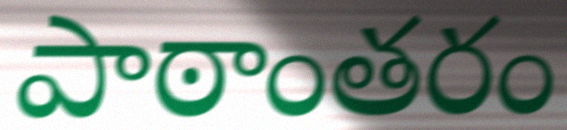
పాఠాంతరం